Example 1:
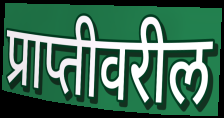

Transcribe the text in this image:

प्राप्तीवरील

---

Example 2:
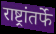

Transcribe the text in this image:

राष्ट्रांतर्फे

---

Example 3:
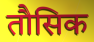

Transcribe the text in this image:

तौसिक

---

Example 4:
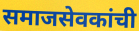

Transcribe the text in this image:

समाजसेवकांची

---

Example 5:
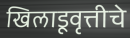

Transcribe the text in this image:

खिलाडूवृत्तीचे